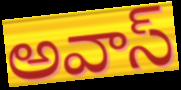
అవాస్